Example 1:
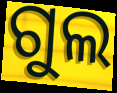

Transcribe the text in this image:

ଗୁଲ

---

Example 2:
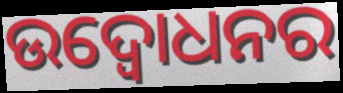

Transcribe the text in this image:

ଉଦ୍ବୋଧନର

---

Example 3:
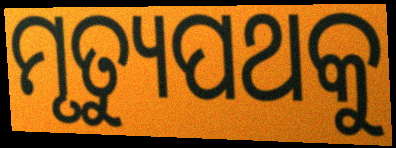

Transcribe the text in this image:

ମୃତ୍ୟୁପଥକୁ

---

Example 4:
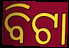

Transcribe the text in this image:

ବିଟା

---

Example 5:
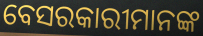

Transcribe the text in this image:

ବେସରକାରୀମାନଙ୍କ